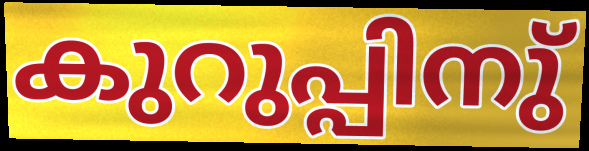
കുറുപ്പിനു്